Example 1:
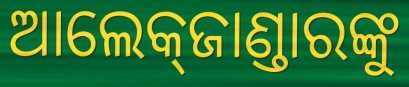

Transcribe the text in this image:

ଆଲେକ୍‌ଜାଣ୍ଡାରଙ୍କୁ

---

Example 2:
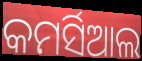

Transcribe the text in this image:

କମର୍ସିଆଲ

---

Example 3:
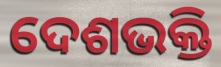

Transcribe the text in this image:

ଦେଶଭକ୍ତି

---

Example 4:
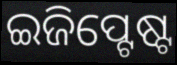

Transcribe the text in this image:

ଇଜିପ୍ଟେଷ୍ଟ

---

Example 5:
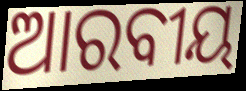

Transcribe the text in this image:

ଆରବୀୟ